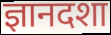
ज्ञानदशा